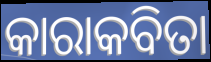
କାରାକବିତା